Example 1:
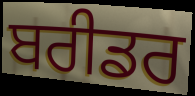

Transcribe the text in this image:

ਬਰੀਡਰ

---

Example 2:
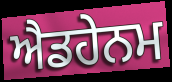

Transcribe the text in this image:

ਐਡਹੇਨਮ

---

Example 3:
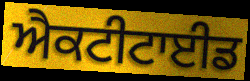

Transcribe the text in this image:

ਐਕਟੀਟਾਈਡ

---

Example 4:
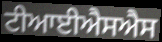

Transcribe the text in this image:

ਟੀਆਈਐਸਐਸ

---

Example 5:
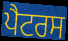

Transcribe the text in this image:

ਪੈਟਰਸ